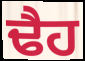
ਢੈਹ